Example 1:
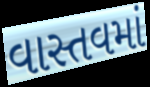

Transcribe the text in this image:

વાસ્તવમાં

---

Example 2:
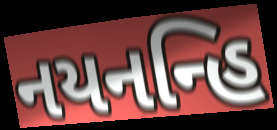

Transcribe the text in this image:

નયનન્હિ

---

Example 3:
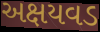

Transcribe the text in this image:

અક્ષયવડ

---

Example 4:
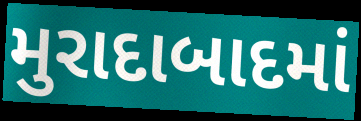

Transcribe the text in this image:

મુરાદાબાદમાં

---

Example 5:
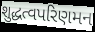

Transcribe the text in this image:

શુદ્ધત્વપરિણમન